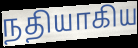
நதியாகிய